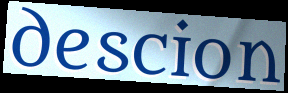
descion